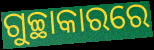
ଗୁଚ୍ଛାକାରରେ